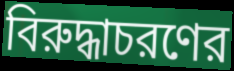
বিরুদ্ধাচরণের